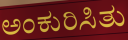
ಅಂಕುರಿಸಿತು